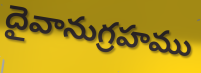
దైవానుగ్రహము